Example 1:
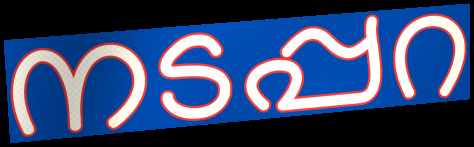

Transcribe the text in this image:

നടപ്പറ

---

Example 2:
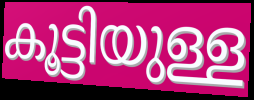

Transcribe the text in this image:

കൂട്ടിയുള്ള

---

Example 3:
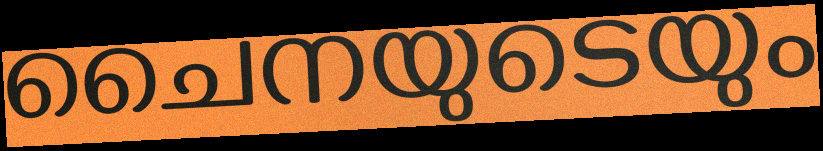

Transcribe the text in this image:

ചൈനയുടെയും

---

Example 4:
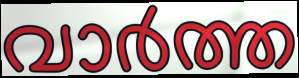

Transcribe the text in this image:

വാർത്ത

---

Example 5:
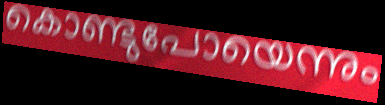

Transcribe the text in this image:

കൊണ്ടുപോയെന്നും